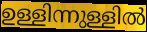
ഉള്ളിന്നുള്ളിൽ